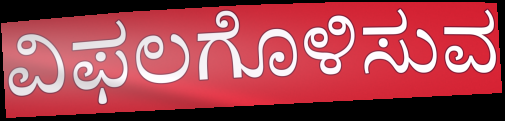
ವಿಫಲಗೊಳಿಸುವ